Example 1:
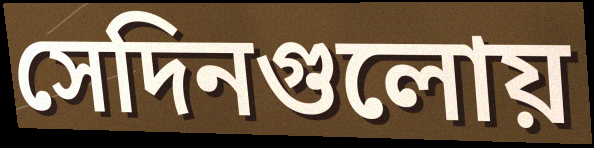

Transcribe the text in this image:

সেদিনগুলোয়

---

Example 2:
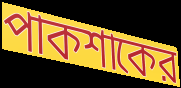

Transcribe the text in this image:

পাকশাকের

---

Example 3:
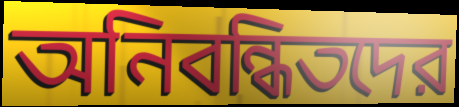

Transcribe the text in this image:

অনিবন্ধিতদের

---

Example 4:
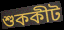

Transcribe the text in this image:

শুককীট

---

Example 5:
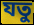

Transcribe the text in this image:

যতু